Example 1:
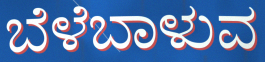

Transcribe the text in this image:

ಬೆಳೆಬಾಳುವ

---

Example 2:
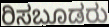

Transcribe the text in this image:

ರಿಸಬೂಡರು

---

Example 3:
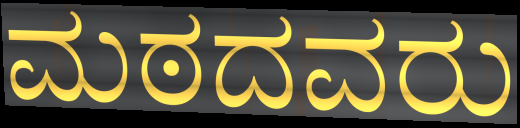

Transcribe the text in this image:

ಮಠದವರು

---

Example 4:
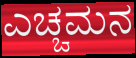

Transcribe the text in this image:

ಎಚ್ಚಮನ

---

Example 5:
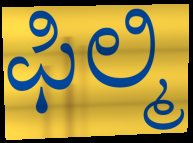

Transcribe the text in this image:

ಫಿಲ್ಮಿ